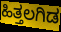
ಹಿತ್ತಲಗಿಡ